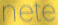
nete